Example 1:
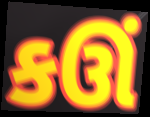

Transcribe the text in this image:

કઊં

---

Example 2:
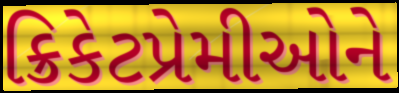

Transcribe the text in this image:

ક્રિકેટપ્રેમીઓને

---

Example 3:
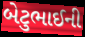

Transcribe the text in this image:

બેટુભાઈની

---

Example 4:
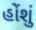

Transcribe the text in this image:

હોંશું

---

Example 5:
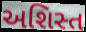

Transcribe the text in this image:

અશિસ્ત